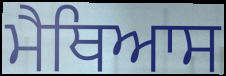
ਮੈਥਿਆਸ